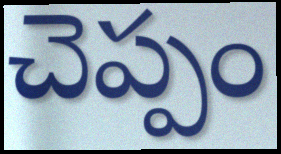
చెప్పం